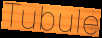
Tubule